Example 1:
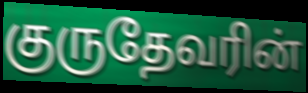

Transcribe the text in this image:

குருதேவரின்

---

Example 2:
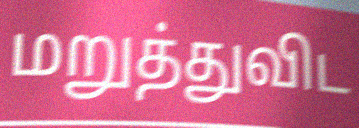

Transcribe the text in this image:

மறுத்துவிட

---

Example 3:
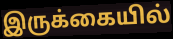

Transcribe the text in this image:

இருக்கையில்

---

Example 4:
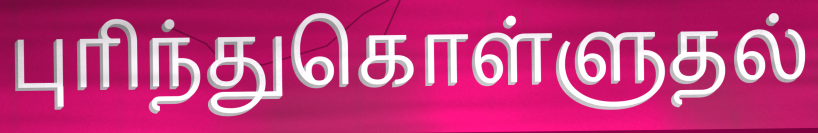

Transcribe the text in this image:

புரிந்துகொள்ளுதல்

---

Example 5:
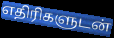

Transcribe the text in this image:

எதிரிகளுடன்